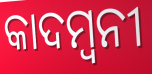
କାଦମ୍ୱନୀ